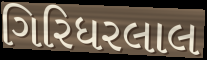
ગિરિધરલાલ